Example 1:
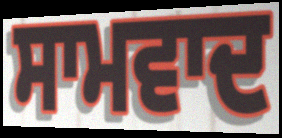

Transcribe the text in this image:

ਸਾਮਵਾਦ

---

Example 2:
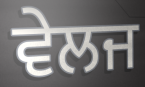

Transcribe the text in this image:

ਵੇਲਜ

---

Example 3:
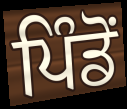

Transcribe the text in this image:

ਪਿੰਡੋਂ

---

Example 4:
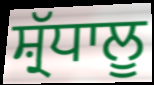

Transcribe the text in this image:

ਸ਼੍ਰੱਧਾਲੂ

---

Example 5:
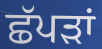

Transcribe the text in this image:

ਛੱਪੜਾਂ